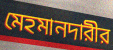
মেহমানদারীর